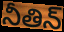
నీతిన్